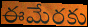
ఈమేరకు